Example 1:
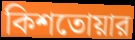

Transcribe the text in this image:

কিশতোয়ার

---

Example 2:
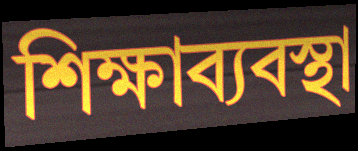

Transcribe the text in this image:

শিক্ষাব্যবস্থা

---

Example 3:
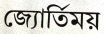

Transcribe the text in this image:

জ্যোর্তিময়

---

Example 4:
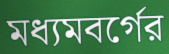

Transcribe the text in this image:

মধ্যমবর্গের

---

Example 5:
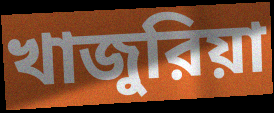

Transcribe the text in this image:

খাজুরিয়া